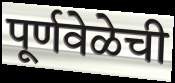
पूर्णवेळेची